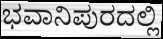
ಭವಾನಿಪುರದಲ್ಲಿ